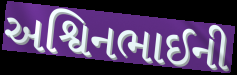
અશ્વિનભાઈની